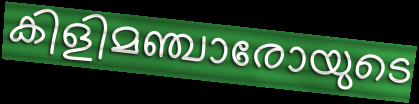
കിളിമഞ്ചാരോയുടെ